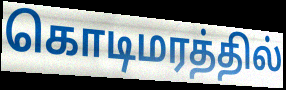
கொடிமரத்தில்